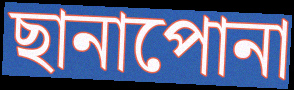
ছানাপোনা